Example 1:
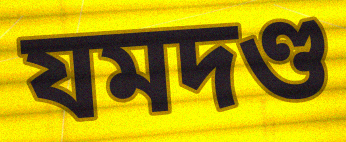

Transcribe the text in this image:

যমদণ্ড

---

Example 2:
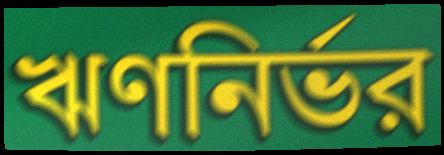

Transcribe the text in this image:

ঋণনির্ভর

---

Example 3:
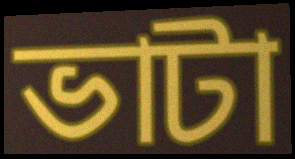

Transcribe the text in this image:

ভাটা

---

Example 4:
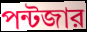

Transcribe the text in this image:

পন্টজার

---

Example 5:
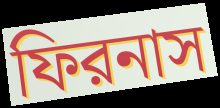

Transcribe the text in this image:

ফিরনাস